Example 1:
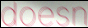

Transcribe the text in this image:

doesn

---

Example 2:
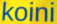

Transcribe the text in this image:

koini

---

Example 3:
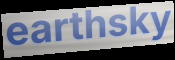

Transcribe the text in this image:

earthsky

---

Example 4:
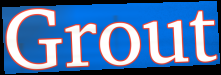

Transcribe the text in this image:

Grout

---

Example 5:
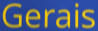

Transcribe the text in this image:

Gerais